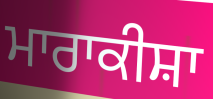
ਮਾਰਾਕੀਸ਼ਾ